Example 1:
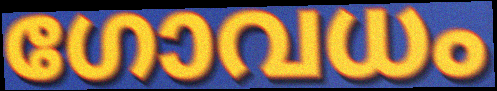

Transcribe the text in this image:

ഗോവധം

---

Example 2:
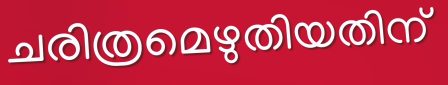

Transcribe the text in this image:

ചരിത്രമെഴുതിയതിന്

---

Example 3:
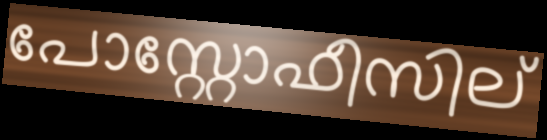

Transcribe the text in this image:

പോസ്റ്റോഫീസില്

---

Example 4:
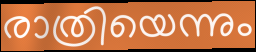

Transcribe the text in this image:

രാത്രിയെന്നും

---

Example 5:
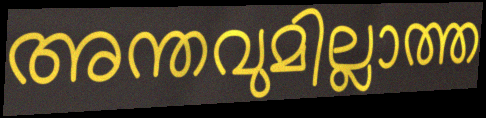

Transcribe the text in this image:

അന്തവുമില്ലാത്ത